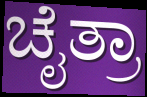
ಚೈತ್ರಾ